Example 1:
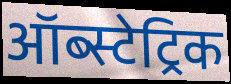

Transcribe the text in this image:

ऑब्स्टेट्रिक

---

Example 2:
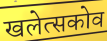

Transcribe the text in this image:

खलेत्सकोव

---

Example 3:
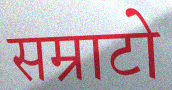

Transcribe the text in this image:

सम्राटो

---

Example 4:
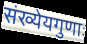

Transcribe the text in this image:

संख्येयगुणाः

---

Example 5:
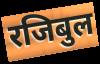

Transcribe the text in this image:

रजिबुल